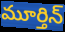
మూర్తిన్